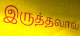
இருத்தலால்